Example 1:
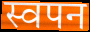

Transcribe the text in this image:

स्वपन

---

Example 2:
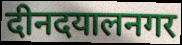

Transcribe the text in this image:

दीनदयालनगर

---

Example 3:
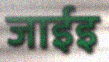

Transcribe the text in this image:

जाईइ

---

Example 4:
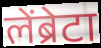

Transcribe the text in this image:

लेंब्रेटा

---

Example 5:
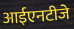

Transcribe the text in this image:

आईएनटीजे